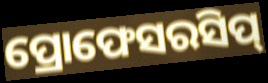
ପ୍ରୋଫେସରସିପ୍